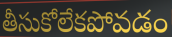
తీసుకోలేకపోవడం